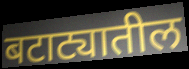
बटाट्यातील